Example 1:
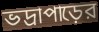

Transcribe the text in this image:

ভদ্রাপাড়ের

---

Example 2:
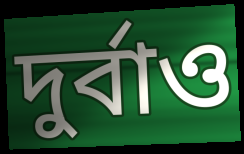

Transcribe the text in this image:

দুর্বাও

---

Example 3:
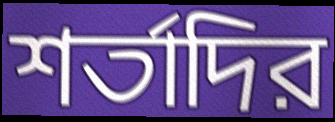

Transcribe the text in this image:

শর্তাদির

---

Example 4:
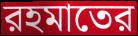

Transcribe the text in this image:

রহমাতের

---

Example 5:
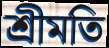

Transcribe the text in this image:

শ্রীমতি